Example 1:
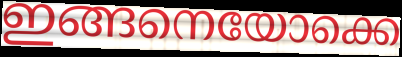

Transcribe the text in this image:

ഇങ്ങനെയോക്കെ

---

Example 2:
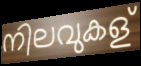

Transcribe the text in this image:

നിലവുകള്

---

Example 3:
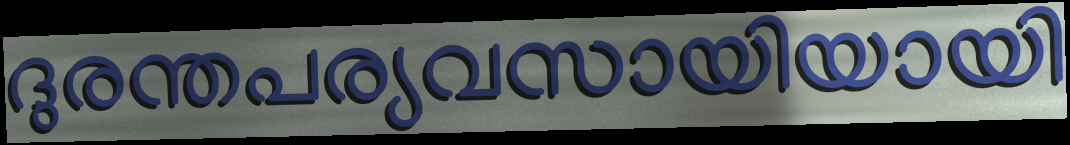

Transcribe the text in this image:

ദുരന്തപര്യവസായിയായി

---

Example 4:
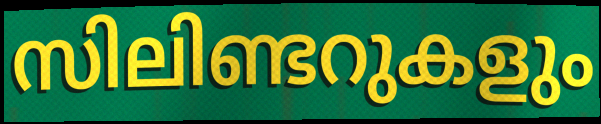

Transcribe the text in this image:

സിലിണ്ടറുകളും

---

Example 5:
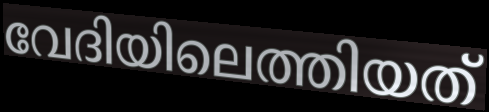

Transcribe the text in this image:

വേദിയിലെത്തിയത്